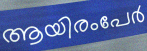
ആയിരംപേർ